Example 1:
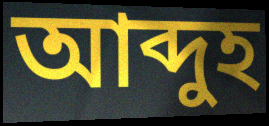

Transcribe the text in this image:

আব্দুহ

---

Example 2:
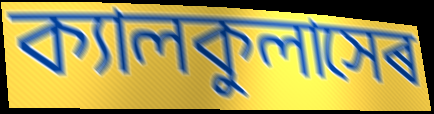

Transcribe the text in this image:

ক্যালকুলাসেৰ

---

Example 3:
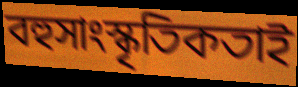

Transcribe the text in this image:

বহুসাংস্কৃতিকতাই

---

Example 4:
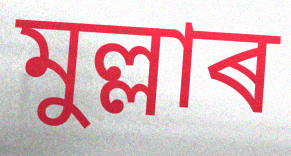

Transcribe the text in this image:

মুল্লাৰ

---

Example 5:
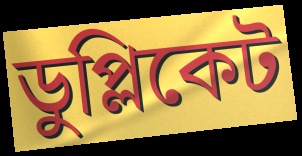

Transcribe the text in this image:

ডুপ্লিকেট